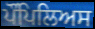
ਪੌਂਪਿਲਿਅਸ